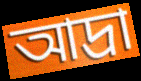
আদ্রা